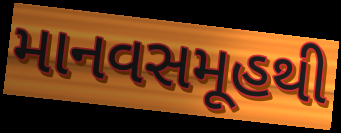
માનવસમૂહથી